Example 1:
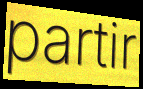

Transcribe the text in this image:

partir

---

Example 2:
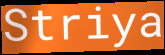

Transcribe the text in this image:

Striya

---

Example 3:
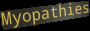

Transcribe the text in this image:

Myopathies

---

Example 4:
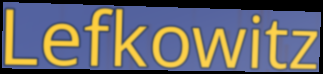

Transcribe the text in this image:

Lefkowitz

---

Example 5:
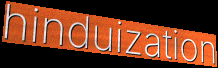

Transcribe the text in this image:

hinduization